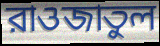
রাওজাতুল